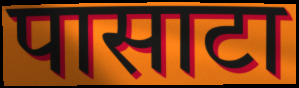
पासाटा